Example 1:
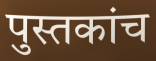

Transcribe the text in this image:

पुस्तकांच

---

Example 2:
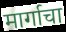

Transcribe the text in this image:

मार्गाचा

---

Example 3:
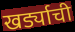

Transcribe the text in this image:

खर्ड्याची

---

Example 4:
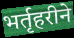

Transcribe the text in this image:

भर्तृहरीने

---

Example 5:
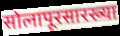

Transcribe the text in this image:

सोलापूरसारख्या